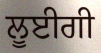
ਲੂਈਗੀ